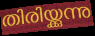
തിരിയ്ക്കുന്നു